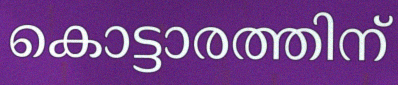
കൊട്ടാരത്തിന്